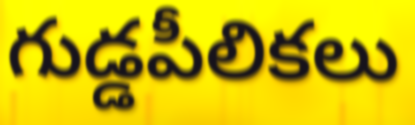
గుడ్డపీలికలు